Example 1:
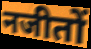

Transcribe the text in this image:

नजीतों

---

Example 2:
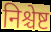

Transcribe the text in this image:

निश्चेष्ट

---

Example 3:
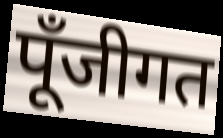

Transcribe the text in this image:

पूँजीगत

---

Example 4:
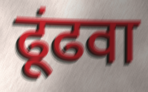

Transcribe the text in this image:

ढूंढवा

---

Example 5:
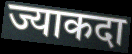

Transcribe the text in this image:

ज्याकदा